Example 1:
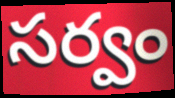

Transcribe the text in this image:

సర్వం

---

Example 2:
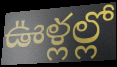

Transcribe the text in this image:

ఊళ్లల్లో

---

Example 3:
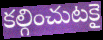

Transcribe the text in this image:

కల్గించుటకై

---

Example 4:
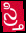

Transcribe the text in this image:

స్ర్తి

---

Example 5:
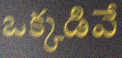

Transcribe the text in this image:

ఒక్కడివే